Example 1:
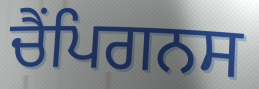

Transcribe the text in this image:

ਚੈਂਪਿਗਨਸ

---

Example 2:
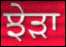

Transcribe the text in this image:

ਝੇੜਾ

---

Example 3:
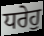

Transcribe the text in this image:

ਧਰੇਹੁ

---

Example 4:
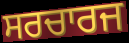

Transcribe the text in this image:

ਸਰਚਾਰਜ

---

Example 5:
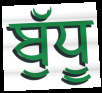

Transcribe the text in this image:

ਬੁੱਧੂ